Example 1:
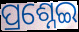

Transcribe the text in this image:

ପ୍ରଶ୍ନେଇ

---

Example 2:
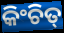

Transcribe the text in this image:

କିଂଚିତ୍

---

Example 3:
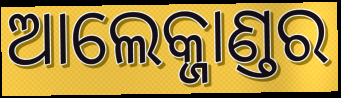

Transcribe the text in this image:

ଆଲେକ୍ଜାଣ୍ଡର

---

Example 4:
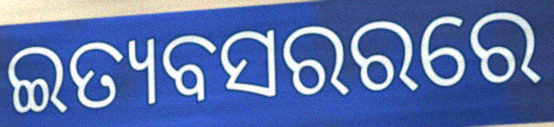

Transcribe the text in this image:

ଇତ୍ୟବସରରରେ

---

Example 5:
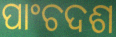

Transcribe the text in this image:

ପାଂଚଦଶ